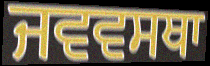
ਜਵਵਸਥਾ